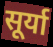
सूर्या